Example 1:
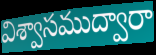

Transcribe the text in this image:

విశ్వాసముద్వారా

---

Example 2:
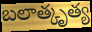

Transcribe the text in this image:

బలాత్కృత్య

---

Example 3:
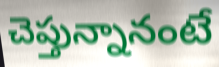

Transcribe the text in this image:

చెప్తున్నానంటే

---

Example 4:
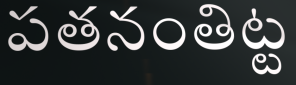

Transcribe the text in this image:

పతనంతిట్ట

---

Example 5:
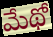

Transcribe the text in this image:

మేథో